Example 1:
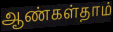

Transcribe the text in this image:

ஆண்கள்தாம்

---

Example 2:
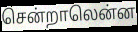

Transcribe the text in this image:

சென்றாலென்ன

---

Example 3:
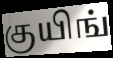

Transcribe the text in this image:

குயிங்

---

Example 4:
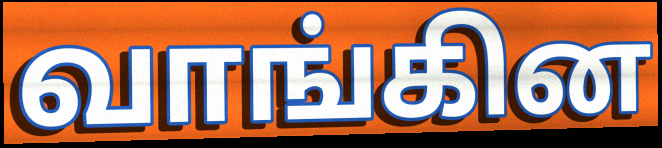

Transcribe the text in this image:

வாங்கின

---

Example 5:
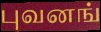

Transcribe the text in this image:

புவனங்